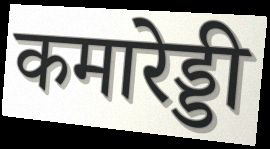
कमारेड्डी